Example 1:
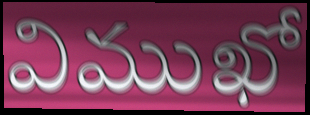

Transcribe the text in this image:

విముఖో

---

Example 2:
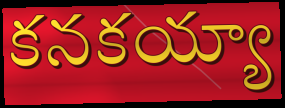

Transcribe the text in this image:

కనకయ్యా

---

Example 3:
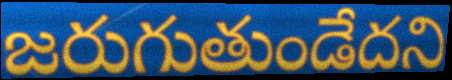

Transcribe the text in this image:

జరుగుతుండేదని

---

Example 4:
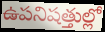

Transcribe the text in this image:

ఉపనిషత్తుల్లో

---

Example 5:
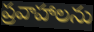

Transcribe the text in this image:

ప్రవాహాలను